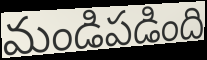
మండిపడింది